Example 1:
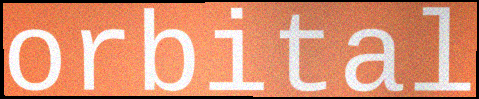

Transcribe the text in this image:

orbital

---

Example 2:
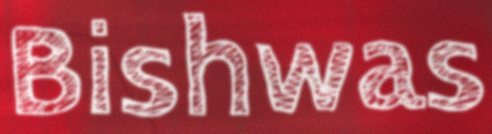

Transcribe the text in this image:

Bishwas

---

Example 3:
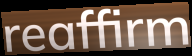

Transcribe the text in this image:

reaffirm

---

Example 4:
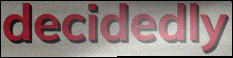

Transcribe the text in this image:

decidedly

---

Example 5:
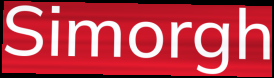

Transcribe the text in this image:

Simorgh